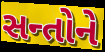
સન્તોને